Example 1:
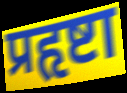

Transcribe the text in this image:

प्रहृष्टा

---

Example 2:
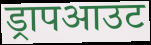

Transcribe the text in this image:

ड्रापआउट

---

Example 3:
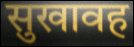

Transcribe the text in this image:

सुखावह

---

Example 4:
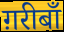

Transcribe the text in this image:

ग़रीबाँ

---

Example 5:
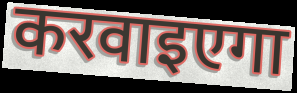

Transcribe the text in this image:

करवाइएगा